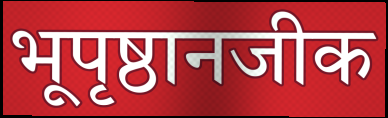
भूपृष्ठानजीक